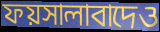
ফয়সালাবাদেও